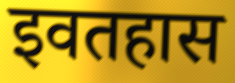
इवतहास